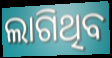
ଲାଗିଥିବ